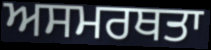
ਅਸਮਰਥਤਾ